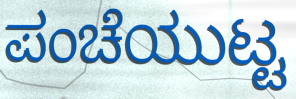
ಪಂಚೆಯುಟ್ಟ